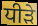
ਧੀੜੇ